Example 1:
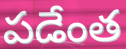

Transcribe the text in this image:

పడేంత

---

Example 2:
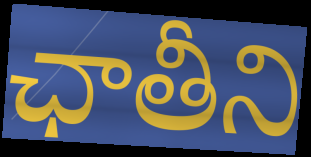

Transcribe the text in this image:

ఛాతీని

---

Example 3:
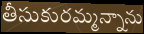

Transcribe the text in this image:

తీసుకురమ్మన్నాను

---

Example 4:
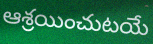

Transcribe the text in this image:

ఆశ్రయించుటయే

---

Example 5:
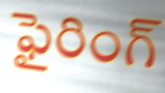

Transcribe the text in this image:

ఫైరింగ్